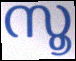
സൂ